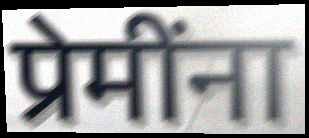
प्रेमींना